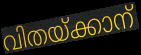
വിതയ്ക്കാന്